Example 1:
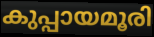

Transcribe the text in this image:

കുപ്പായമൂരി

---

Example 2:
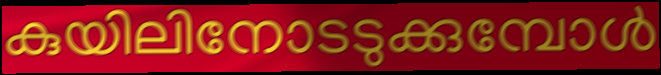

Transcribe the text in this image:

കുയിലിനോടടുക്കുമ്പോൾ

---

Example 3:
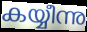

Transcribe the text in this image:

കയ്യീന്നു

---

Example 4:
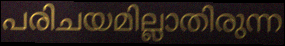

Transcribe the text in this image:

പരിചയമില്ലാതിരുന്ന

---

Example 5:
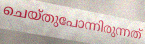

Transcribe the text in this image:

ചെയ്തുപോന്നിരുന്നത്